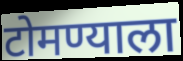
टोमण्याला